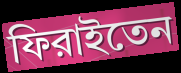
ফিরাইতেন